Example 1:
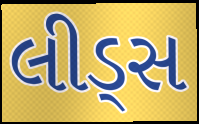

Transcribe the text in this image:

લીડ્સ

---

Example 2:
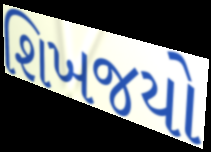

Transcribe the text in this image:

શિખજયો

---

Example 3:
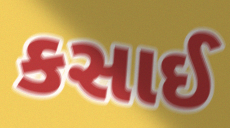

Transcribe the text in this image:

કસાઈ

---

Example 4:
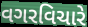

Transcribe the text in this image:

વગરવિચારે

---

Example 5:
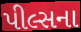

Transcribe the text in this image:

પીલ્સના